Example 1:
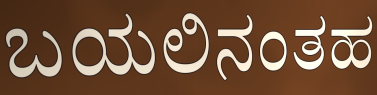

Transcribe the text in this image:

ಬಯಲಿನಂತಹ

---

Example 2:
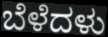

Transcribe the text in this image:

ಬೆಳೆದಳು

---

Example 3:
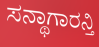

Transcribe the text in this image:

ಸನ್ಥಾಗಾರನ್ತಿ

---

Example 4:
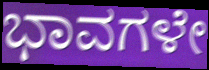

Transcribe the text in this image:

ಭಾವಗಳೇ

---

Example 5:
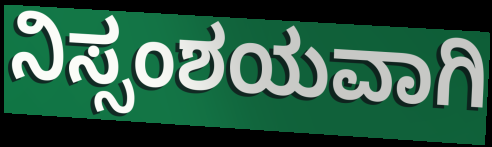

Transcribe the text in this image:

ನಿಸ್ಸಂಶಯವಾಗಿ